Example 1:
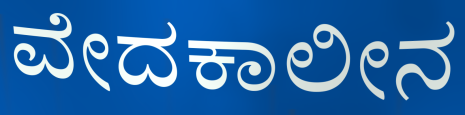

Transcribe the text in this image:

ವೇದಕಾಲೀನ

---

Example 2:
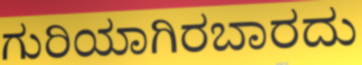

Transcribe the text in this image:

ಗುರಿಯಾಗಿರಬಾರದು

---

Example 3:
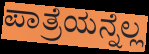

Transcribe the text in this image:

ಪಾತ್ರೆಯನ್ನೆಲ್ಲ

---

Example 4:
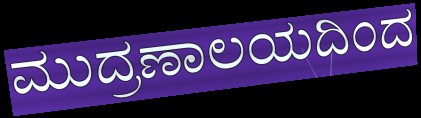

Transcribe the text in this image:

ಮುದ್ರಣಾಲಯದಿಂದ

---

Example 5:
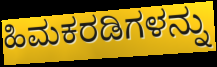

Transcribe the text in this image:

ಹಿಮಕರಡಿಗಳನ್ನು